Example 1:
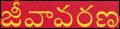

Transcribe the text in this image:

జీవావరణ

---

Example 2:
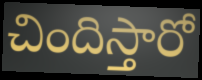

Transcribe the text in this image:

చిందిస్తారో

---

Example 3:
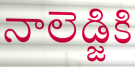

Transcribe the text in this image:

నాలెడ్జికి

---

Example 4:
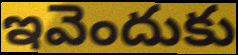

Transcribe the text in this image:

ఇవెందుకు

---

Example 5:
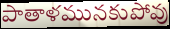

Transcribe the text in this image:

పాతాళమునకుపోవు